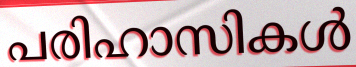
പരിഹാസികൾ